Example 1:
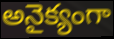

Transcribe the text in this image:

అనైక్యంగా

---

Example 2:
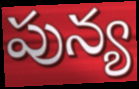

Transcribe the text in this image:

పున్య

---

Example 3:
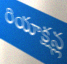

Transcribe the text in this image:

రియాక్షన్ల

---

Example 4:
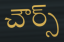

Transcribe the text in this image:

చౌర్స్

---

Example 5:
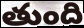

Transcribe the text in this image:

తుంది